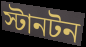
স্টানটন